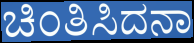
ಚಿಂತಿಸಿದನಾ